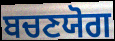
ਬਚਣਯੋਗ